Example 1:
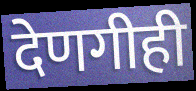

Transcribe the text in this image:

देणगीही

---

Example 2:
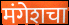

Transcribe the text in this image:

मंगेशचा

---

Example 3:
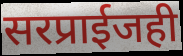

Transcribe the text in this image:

सरप्राईजही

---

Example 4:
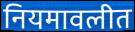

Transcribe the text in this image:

नियमावलीत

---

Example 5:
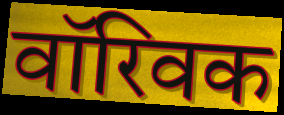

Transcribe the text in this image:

वॉरिवक